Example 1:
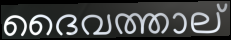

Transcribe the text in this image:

ദൈവത്താല്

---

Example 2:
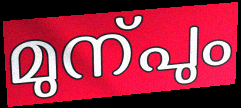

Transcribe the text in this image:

മുന്പും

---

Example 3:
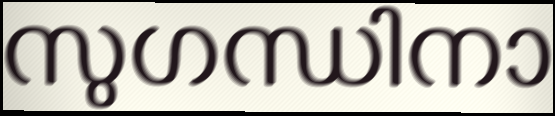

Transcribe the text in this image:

സുഗന്ധിനാ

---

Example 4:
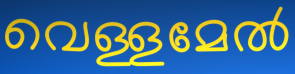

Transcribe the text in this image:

വെള്ളമേൽ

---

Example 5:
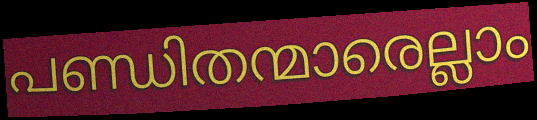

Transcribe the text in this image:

പണ്ഡിതന്മാരെല്ലാം